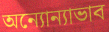
অন্যোন্যাভাব